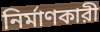
নির্মাণকারী